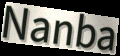
Nanba